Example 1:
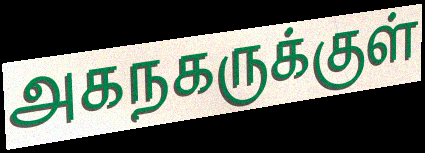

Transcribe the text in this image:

அகநகருக்குள்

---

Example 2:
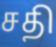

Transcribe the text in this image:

சதி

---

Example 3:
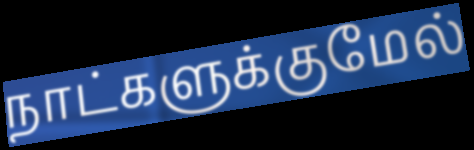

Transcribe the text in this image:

நாட்களுக்குமேல்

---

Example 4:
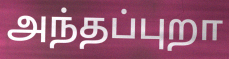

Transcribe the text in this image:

அந்தப்புறா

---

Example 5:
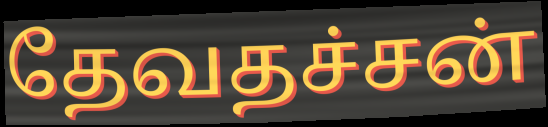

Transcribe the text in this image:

தேவதச்சன்